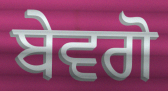
ਬੇਵਗੋ